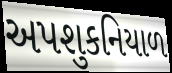
અપશુકનિયાળ